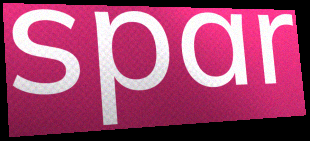
spar